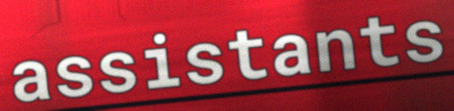
assistants